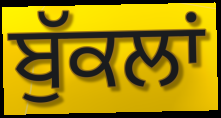
ਬੁੱਕਲਾਂ